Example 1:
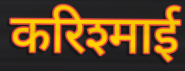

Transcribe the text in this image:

करिश्माई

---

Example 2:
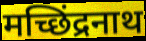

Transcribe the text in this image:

मच्छिंद्रनाथ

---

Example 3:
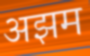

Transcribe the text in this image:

अझम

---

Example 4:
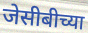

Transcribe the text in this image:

जेसीबीच्या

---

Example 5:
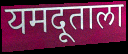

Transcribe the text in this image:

यमदूताला